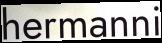
hermanni